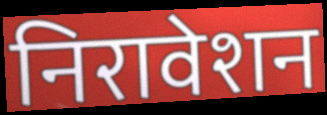
निरावेशन